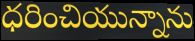
ధరించియున్నాను